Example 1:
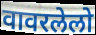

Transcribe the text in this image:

वावरलेलो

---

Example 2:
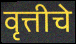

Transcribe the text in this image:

वृत्तीचे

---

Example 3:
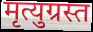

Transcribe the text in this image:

मृत्युग्रस्त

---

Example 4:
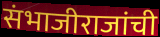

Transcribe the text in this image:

संभाजीराजांची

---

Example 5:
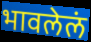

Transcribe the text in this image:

भावलेलं